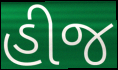
હીજ